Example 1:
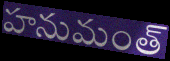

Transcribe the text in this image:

హనుమంత్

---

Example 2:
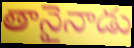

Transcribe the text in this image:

తానైనాడు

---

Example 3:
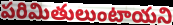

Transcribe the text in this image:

పరిమితులుంటాయని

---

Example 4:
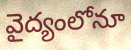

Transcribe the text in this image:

వైద్యంలోనూ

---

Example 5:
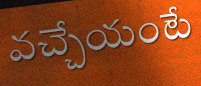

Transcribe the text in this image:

వచ్చేయంటే